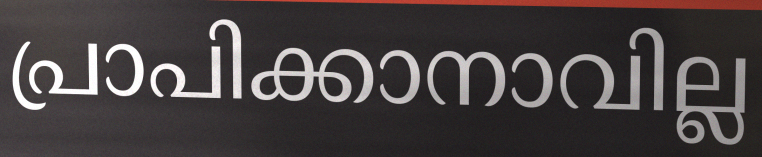
പ്രാപിക്കാനാവില്ല